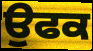
ਉਫਕ